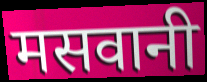
मसवानी